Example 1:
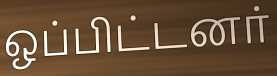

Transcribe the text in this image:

ஒப்பிட்டனர்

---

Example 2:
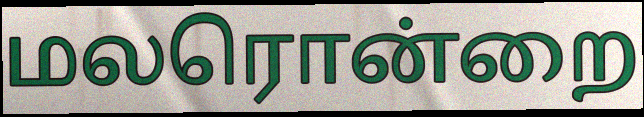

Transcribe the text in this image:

மலரொன்றை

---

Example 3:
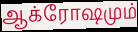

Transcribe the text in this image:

ஆக்ரோஷமும்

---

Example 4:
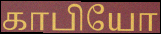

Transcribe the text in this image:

காபியோ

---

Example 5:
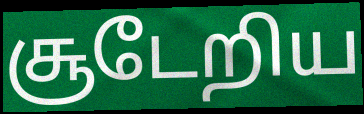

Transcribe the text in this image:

சூடேறிய